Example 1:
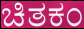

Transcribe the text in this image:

ಚಿತಕಂ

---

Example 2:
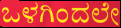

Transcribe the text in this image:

ಒಳಗಿಂದಲೇ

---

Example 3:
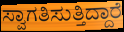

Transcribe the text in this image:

ಸ್ವಾಗತಿಸುತ್ತಿದ್ದಾರೆ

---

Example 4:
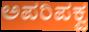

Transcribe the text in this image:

ಅಪರಿಪಕ್ವ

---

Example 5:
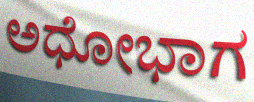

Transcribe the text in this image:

ಅಧೋಭಾಗ